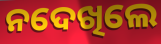
ନଦେଖିଲେ